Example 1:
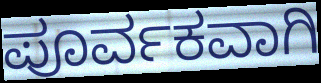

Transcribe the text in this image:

ಪೂರ್ವಕವಾಗಿ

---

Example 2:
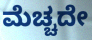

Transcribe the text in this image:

ಮೆಚ್ಚದೇ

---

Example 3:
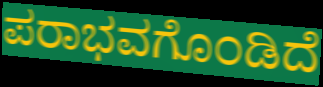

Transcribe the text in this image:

ಪರಾಭವಗೊಂಡಿದೆ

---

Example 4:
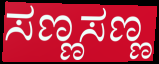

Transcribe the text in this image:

ಸಣ್ಣಸಣ್ಣ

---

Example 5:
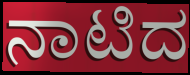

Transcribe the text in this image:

ನಾಟಿದ